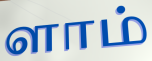
ளாம்